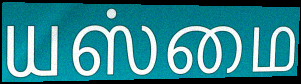
யஸ்மை